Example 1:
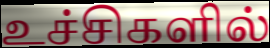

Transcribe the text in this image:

உச்சிகளில்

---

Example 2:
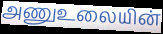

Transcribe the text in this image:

அணுஉலையின்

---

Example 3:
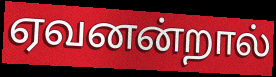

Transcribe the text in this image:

ஏவனன்றால்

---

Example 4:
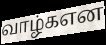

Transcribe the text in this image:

வாழ்கஎன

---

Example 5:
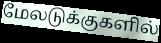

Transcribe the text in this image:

மேலடுக்குகளில்